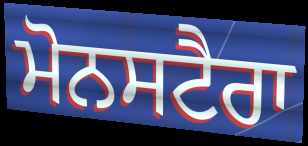
ਮੋਨਸਟੈਰਾ